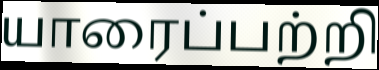
யாரைப்பற்றி